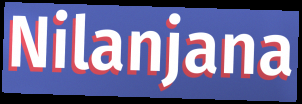
Nilanjana